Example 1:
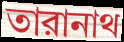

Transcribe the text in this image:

তারানাথ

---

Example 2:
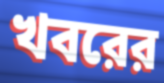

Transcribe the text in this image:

খবরের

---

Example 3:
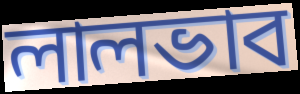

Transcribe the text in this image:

লালভাব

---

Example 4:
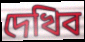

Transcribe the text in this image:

দেখিব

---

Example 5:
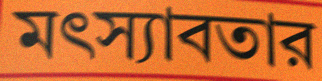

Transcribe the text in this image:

মৎস্যাবতার